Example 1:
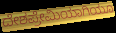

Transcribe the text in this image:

ದೇಶಪ್ರೇಮಿಯಾಗಿಯೂ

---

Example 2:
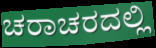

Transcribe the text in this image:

ಚರಾಚರದಲ್ಲಿ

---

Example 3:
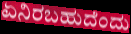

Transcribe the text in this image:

ಏನಿರಬಹುದೆಂದು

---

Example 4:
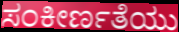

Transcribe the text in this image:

ಸಂಕೀರ್ಣತೆಯು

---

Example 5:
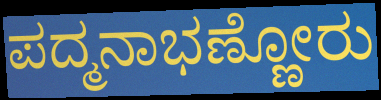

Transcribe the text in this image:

ಪದ್ಮನಾಭಣ್ಣೋರು